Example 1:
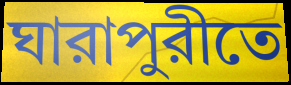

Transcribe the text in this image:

ঘারাপুরীতে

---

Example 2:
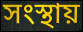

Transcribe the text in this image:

সংস্থায়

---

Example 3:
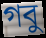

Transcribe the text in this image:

গবু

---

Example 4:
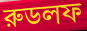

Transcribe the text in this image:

রুডলফ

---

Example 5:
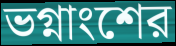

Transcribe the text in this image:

ভগ্নাংশের